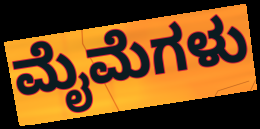
ಮೈಮೆಗಳು